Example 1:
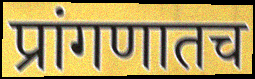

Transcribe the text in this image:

प्रांगणातच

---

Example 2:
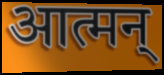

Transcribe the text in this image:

आत्मन्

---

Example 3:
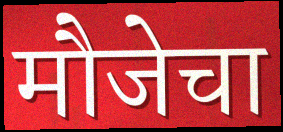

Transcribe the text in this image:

मौजेचा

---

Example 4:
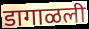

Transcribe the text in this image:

डागाळली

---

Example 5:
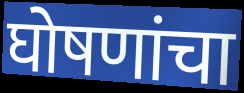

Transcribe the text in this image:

घोषणांचा